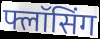
फ्लॉसिंग